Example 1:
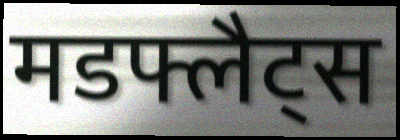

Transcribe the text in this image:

मडफ्लैट्स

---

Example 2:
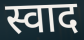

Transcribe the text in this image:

स्वाद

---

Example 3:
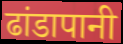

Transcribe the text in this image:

ढांडापानी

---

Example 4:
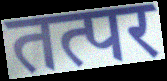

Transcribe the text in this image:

तत्‍पर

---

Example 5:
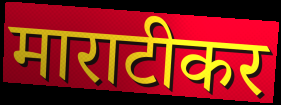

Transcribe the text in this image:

माराटीकर